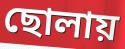
ছোলায়